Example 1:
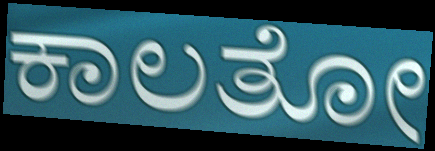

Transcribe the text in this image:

ಕಾಲತೋ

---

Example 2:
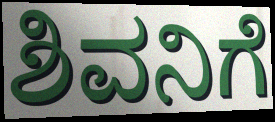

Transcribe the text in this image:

ಶಿವನಿಗೆ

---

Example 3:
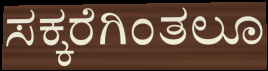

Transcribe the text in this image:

ಸಕ್ಕರೆಗಿಂತಲೂ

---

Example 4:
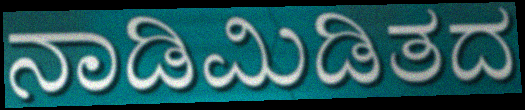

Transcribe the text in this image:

ನಾಡಿಮಿಡಿತದ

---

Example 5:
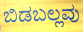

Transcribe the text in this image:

ಬಿಡಬಲ್ಲವು